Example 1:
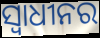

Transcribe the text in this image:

ସ୍ୱାଧୀନର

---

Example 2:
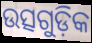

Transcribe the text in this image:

ଉତ୍ସଗୁଡ଼ିକ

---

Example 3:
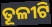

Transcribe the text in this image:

ତୂଳୀଟି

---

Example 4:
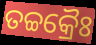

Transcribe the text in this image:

ତଚ୍ଚକ୍ରୈଃ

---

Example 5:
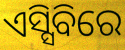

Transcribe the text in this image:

ଏସ୍ସିବିରେ